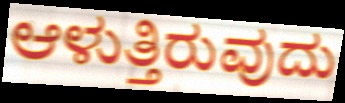
ಆಳುತ್ತಿರುವುದು